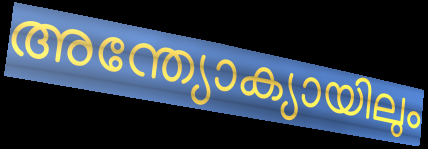
അന്ത്യോക്യായിലും